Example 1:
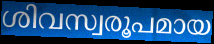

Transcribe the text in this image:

ശിവസ്വരൂപമായ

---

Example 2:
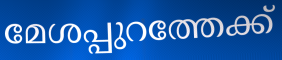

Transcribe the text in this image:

മേശപ്പുറത്തേക്ക്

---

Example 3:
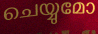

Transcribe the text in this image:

ചെയ്യുമോ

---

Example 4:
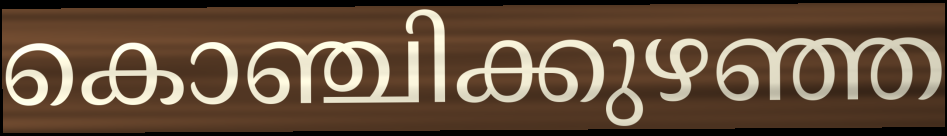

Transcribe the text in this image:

കൊഞ്ചിക്കുഴഞ്ഞ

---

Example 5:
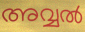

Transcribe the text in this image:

അവ്വൽ